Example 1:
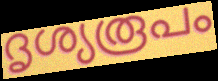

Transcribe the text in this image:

ദൃശ്യരൂപം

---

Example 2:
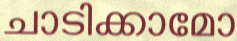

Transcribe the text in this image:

ചാടിക്കാമോ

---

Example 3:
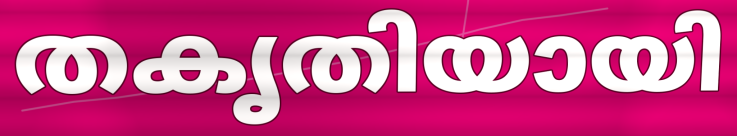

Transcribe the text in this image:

തകൃതിയായി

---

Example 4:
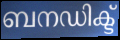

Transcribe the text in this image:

ബനഡിക്ട്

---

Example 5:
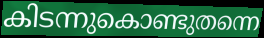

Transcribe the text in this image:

കിടന്നുകൊണ്ടുതന്നെ